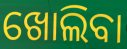
ଖୋଲିବା